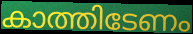
കാത്തിടേണം